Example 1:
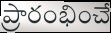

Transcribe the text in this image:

ప్రారంభించే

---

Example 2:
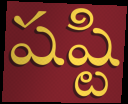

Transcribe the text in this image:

షష్టి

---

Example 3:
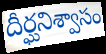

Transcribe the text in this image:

దీర్ఘనిశ్వాసం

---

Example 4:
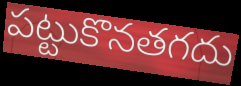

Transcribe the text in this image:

పట్టుకొనతగదు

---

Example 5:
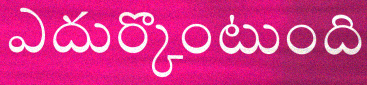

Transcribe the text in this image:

ఎదుర్కొంటుంది